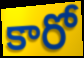
కారో